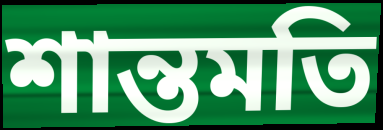
শান্তমতি